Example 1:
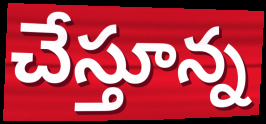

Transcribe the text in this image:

చేస్తూన్న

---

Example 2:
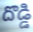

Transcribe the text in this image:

దొడ్డి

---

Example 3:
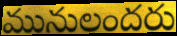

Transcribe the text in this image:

మునులందరు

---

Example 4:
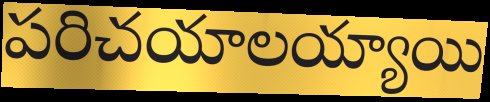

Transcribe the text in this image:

పరిచయాలయ్యాయి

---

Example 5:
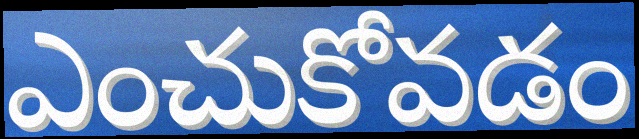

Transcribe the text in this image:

ఎంచుకోవడం